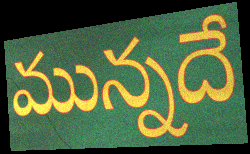
మున్నదే